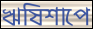
ঋষিশাপে